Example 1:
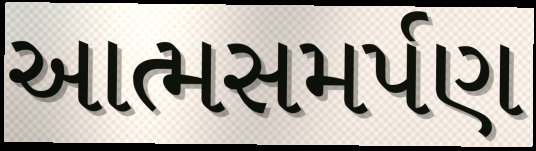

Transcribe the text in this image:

આત્મસમર્પણ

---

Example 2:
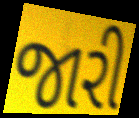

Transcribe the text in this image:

જારી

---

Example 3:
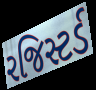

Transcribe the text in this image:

રજિસ્ટર્ડ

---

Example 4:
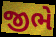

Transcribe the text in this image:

જીભે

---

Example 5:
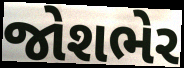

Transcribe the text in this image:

જોશભેર